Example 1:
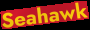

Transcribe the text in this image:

Seahawk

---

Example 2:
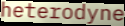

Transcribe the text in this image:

heterodyne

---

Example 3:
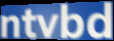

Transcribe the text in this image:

ntvbd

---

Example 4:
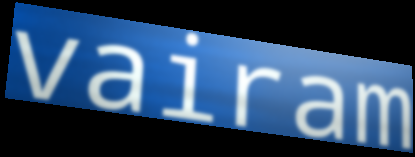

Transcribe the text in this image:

vairam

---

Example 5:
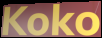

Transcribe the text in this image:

Koko